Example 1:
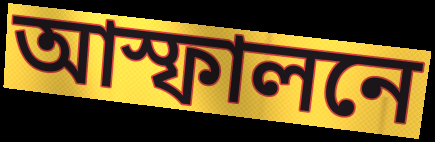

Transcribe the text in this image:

আস্ফালনে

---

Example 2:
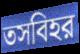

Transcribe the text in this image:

তসবিহর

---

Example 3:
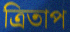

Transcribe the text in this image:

ত্রিতাপ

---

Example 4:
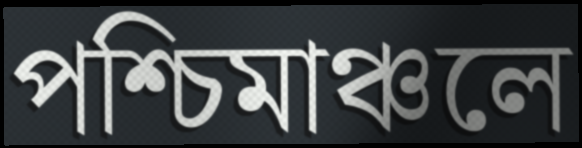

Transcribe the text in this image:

পশ্চিমাঞ্চলে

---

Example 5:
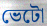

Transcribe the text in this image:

ভেটো